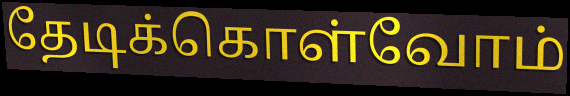
தேடிக்கொள்வோம்